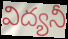
విద్యనీ